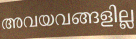
അവയവങ്ങളില്ല